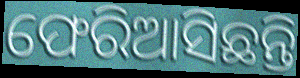
ଫେରିଆସିଛନ୍ତି